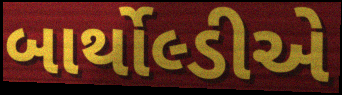
બાર્થોલ્ડીએ